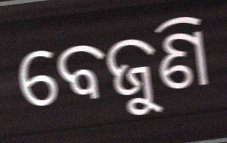
ବେଜୁଣି